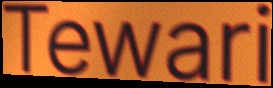
Tewari